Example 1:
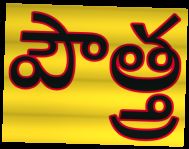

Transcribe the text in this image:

పౌత్త్ర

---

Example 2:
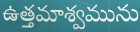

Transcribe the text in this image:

ఉత్తమాశ్వమును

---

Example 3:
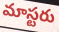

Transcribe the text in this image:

మాస్టరు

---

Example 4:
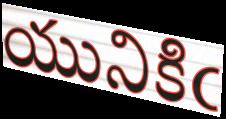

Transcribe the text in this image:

యునికిఁ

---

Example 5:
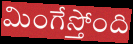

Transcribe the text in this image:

మింగేస్తోంది